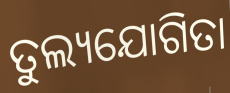
ତୁଲ୍ୟଯୋଗିତା